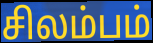
சிலம்பம்